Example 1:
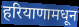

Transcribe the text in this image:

हरियाणामधून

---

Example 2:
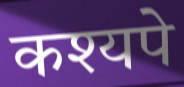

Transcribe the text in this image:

कश्यपे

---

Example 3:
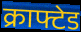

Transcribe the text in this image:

क्राफ्टेड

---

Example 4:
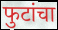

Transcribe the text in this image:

फुटांचा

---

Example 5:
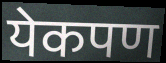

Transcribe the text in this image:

येकपण